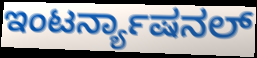
ಇಂಟರ್ನ್ಯಾಷನಲ್